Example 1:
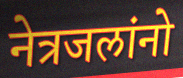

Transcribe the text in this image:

नेत्रजलांनो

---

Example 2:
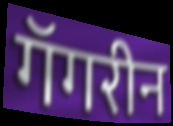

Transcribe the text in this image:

गॅगरीन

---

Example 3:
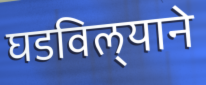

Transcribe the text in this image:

घडविल्याने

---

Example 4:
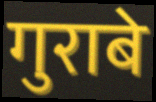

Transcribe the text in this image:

गुराबे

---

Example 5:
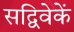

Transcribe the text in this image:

सद्विवेकें